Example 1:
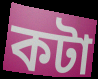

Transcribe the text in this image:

কটা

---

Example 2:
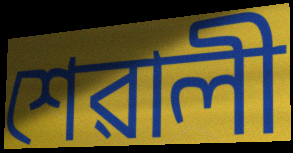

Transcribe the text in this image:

শেৱালী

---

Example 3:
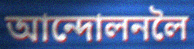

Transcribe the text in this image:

আন্দোলনলৈ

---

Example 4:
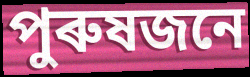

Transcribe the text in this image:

পুৰুষজনে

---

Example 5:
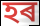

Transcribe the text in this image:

হৰ